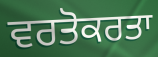
ਵਰਤੋਕਰਤਾ